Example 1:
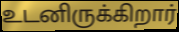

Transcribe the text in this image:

உடனிருக்கிறார்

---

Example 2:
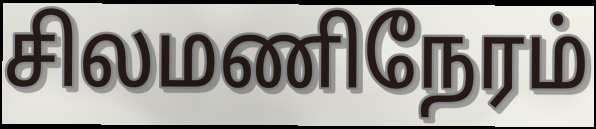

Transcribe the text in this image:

சிலமணிநேரம்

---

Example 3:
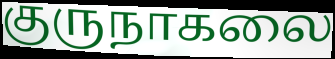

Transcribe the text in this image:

குருநாகலை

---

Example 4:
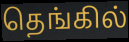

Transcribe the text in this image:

தெங்கில்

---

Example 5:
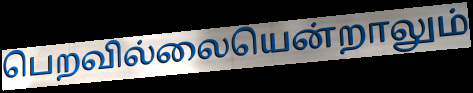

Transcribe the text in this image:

பெறவில்லையென்றாலும்